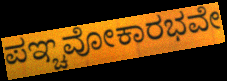
ಪಞ್ಚವೋಕಾರಭವೇ